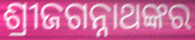
ଶ୍ରୀଜଗନ୍ନାଥଙ୍କର